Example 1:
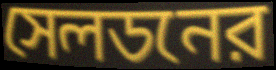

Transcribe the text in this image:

সেলডনের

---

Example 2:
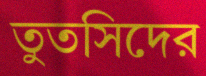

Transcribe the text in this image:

তুতসিদের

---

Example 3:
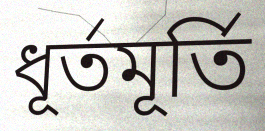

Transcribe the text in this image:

ধূর্তমূর্তি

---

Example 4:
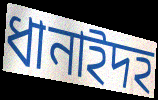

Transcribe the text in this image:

ধানাইদহ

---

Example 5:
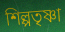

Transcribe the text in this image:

শিল্পতৃষ্ণা